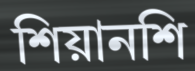
শিয়ানশি